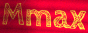
Mmax